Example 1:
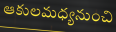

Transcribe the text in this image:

ఆకులమధ్యనుంచి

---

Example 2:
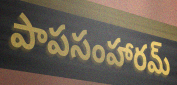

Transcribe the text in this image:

పాపసంహారమ్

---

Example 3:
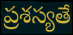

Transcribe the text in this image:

ప్రశస్యతే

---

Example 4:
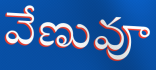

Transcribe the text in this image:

వేణువూ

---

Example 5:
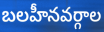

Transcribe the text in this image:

బలహీనవర్గాల